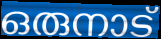
ഒരുനാട്